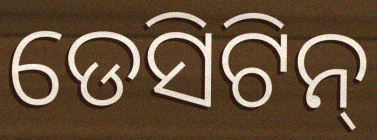
ଡେସିଟିନ୍